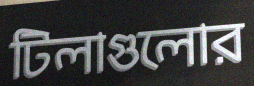
টিলাগুলোর